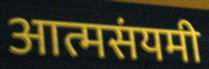
आत्मसंयमी